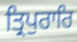
ਤ੍ਰਿਪੁਰਾਰਿ